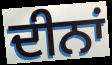
ਦੀਨਾਂ